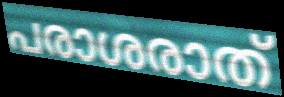
പരാശരാത്